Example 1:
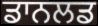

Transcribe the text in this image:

ਡਾਨਲਡ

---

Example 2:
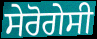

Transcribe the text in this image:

ਸੇਰੋਗੇਸੀ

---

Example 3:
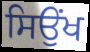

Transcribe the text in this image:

ਸਿਉਂਖ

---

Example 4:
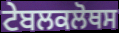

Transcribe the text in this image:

ਟੇਬਲਕਲੋਥਸ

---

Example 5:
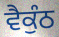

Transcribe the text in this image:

ਵੈਕੁੰਠ